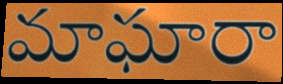
మాఘారా